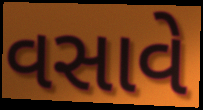
વસાવે